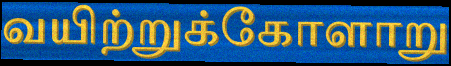
வயிற்றுக்கோளாறு